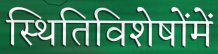
स्थितिविशेषोंमें